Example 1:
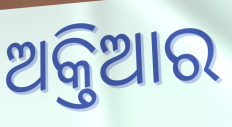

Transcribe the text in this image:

ଅକ୍ତିଆର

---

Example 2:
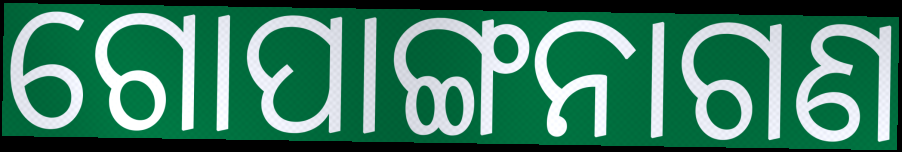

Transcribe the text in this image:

ଗୋପାଙ୍ଗନାଗଣ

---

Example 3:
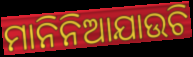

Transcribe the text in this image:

ମାନିନିଆଯାଉଚି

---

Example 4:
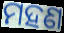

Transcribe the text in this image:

ମହଣ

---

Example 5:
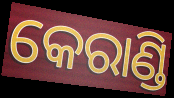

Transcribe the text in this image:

କେରାଣ୍ଡି